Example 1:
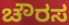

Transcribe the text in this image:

ಚೌರಸ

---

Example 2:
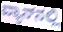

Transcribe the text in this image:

ವ್ಯಾನ್‌ನಲ್ಲಿ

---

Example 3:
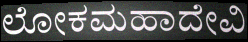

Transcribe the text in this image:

ಲೋಕಮಹಾದೇವಿ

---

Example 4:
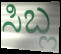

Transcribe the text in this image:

ಸಿಬ್ಲ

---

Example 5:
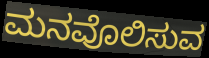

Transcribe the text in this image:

ಮನವೊಲಿಸುವ